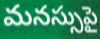
మనస్సుపై